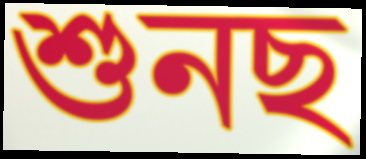
শুনছ